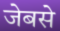
जेबसे